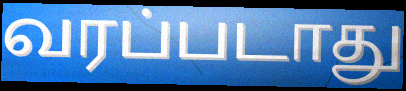
வரப்படாது